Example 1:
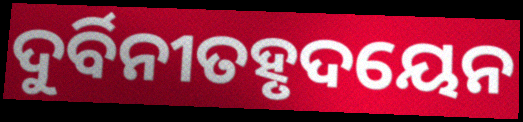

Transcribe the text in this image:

ଦୁର୍ବିନୀତହୃଦୟେନ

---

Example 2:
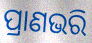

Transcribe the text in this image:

ପ୍ରାଣଭରି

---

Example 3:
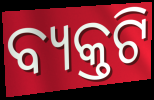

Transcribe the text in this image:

ବ୍ୟକ୍ତଟି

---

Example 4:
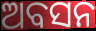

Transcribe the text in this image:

ଅବସନ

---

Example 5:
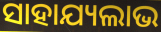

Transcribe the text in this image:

ସାହାଯ୍ୟଲାଭ